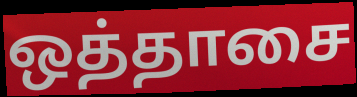
ஒத்தாசை